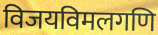
विजयविमलगणि